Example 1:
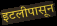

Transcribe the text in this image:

इटलीपासून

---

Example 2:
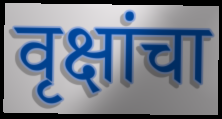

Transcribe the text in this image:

वृक्षांचा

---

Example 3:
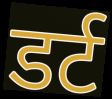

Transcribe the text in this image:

डर्ट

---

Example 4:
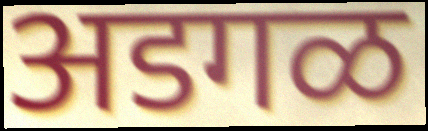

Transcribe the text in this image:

अडगळ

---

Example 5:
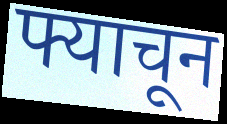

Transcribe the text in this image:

फ्याचून